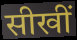
सीखीं